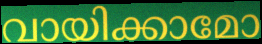
വായിക്കാമോ